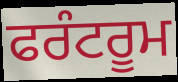
ਫਰੰਟਰੂਮ